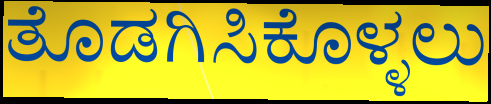
ತೊಡಗಿಸಿಕೊಳ್ಳಲು